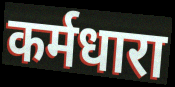
कर्मधारा